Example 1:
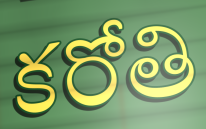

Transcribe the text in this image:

కరోతి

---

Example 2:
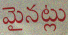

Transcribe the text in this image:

మైనట్లు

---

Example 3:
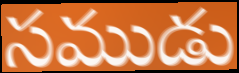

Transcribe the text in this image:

సముడు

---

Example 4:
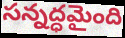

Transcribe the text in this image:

సన్నద్ధమైంది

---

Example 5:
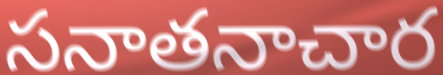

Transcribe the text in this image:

సనాతనాచార